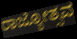
ರಾಜ್ಯೋತ್ಸವ